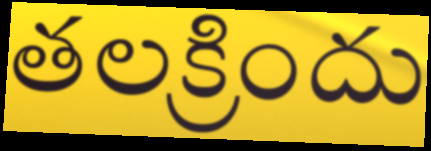
తలక్రిందు